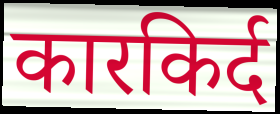
कारकिर्द